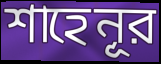
শাহেনূর